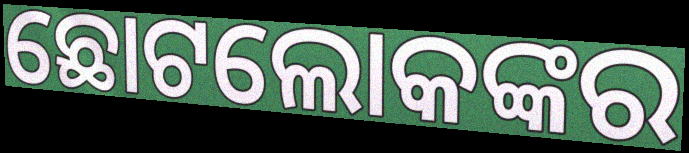
ଛୋଟଲୋକଙ୍କର